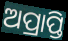
ଅପ୍ରାପ୍ତି